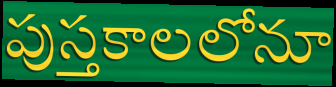
పుస్తకాలలోనూ